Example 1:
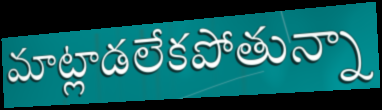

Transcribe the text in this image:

మాట్లాడలేకపోతున్నా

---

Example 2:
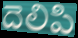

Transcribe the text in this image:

దెలిపి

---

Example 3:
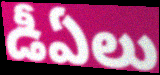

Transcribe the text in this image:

డీఏలు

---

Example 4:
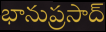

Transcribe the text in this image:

భానుప్రసాద్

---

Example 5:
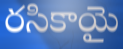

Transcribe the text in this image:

రసికాయై